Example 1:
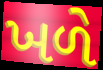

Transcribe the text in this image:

ખળે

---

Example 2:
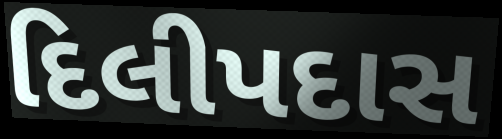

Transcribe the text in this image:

દિલીપદાસ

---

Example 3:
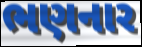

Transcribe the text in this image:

ભણનાર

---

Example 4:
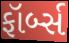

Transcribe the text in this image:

ફૉર્બ્સ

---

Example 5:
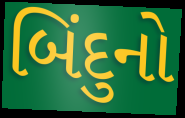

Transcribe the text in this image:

બિંદુનો